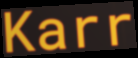
Karr